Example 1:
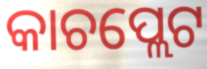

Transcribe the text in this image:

କାଚପ୍ଲେଟ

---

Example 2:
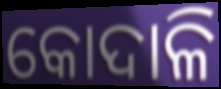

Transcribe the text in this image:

କୋଦାଳି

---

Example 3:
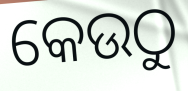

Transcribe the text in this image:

କେଉଠୁ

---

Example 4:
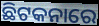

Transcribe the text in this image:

ଛିଟକନାରେ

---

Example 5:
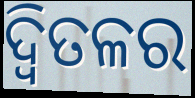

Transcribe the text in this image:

ଦ୍ୱିତଳର